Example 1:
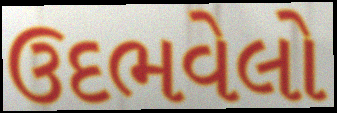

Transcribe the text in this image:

ઉદભવેલો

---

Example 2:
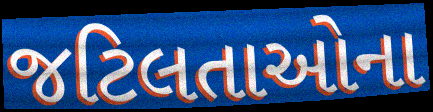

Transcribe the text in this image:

જટિલતાઓના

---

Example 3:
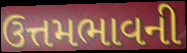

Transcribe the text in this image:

ઉત્તમભાવની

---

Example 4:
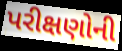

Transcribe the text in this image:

પરીક્ષણોની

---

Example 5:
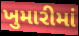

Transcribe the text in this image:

ખુમારીમાં